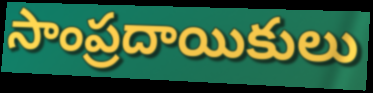
సాంప్రదాయికులు